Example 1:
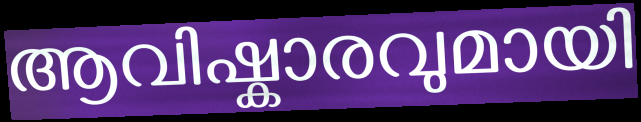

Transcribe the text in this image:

ആവിഷ്കാരവുമായി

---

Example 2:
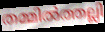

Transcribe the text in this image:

തമ്മിൽത്തല്ലി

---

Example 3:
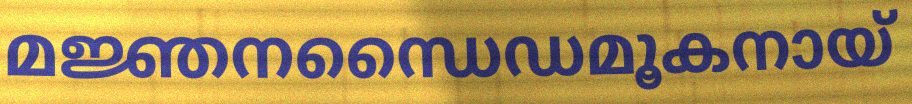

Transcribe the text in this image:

മജ്ഞനന്ധൈഡമൂകനായ്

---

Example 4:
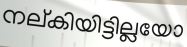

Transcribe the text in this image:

നല്കിയിട്ടില്ലയോ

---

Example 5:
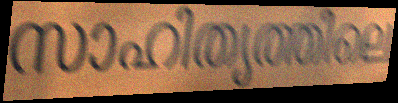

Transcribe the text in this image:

സാഹിത്യത്തിലെ